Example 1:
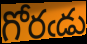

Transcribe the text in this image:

గోరఁడు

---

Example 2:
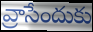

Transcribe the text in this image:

వ్రాసేందుకు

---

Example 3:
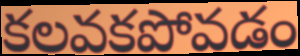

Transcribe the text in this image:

కలవకపోవడం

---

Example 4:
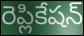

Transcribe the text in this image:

రెప్లికేషన్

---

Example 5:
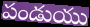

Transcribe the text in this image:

పండుయు